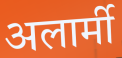
अलार्मी